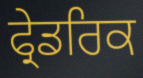
ਫ੍ਰੇਡਰਿਕ